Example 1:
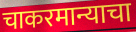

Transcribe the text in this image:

चाकरमान्याचा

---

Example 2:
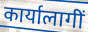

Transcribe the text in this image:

कार्यालागीं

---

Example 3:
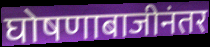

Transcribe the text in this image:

घोषणाबाजीनंतर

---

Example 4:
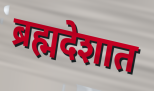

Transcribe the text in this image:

ब्रह्मदेशात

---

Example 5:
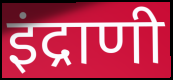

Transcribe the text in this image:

इंद्राणी